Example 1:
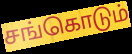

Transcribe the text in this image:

சங்கொடும்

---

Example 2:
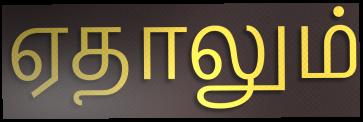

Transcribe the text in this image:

ஏதாலும்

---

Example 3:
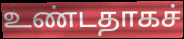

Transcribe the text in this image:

உண்டதாகச்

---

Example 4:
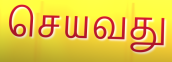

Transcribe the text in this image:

செயவது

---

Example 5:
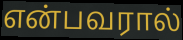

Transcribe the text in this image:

என்பவரால்